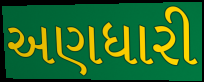
અણધારી